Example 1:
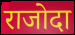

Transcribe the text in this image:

राजोदा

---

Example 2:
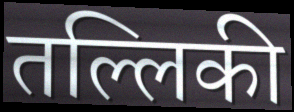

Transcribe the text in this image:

तल्लिकी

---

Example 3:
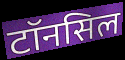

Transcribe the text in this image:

टॉनसिल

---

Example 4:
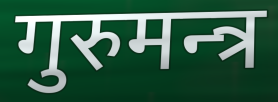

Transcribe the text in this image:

गुरुमन्त्र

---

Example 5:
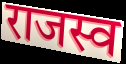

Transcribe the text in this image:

राजस्‍व